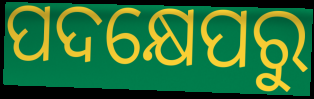
ପଦକ୍ଷେପରୁ